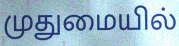
முதுமையில்